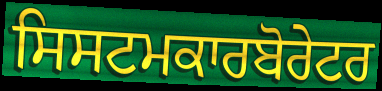
ਸਿਸਟਮਕਾਰਬੋਰੇਟਰ